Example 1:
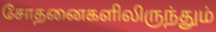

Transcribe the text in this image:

சோதனைகளிலிருந்தும்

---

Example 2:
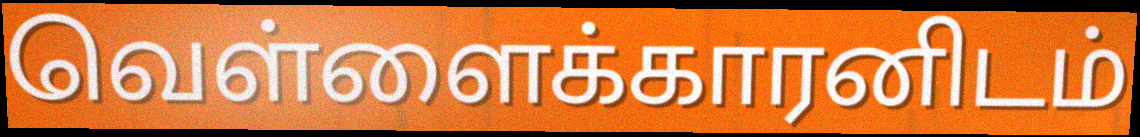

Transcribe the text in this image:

வெள்ளைக்காரனிடம்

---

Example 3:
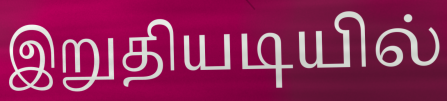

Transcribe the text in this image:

இறுதியடியில்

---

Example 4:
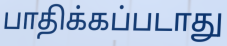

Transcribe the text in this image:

பாதிக்கப்படாது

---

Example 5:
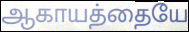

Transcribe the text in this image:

ஆகாயத்தையே